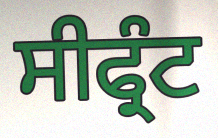
ਸੀਫ੍ਰੰਟ